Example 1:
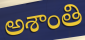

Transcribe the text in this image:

అశాంతి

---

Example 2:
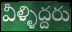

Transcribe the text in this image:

వీళ్ళిద్దరు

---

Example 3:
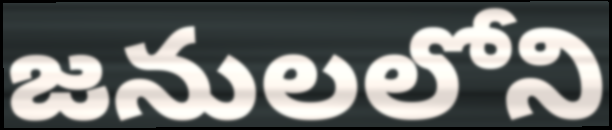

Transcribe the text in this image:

జనులలోని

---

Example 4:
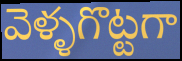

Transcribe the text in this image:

వెళ్ళగొట్టగా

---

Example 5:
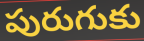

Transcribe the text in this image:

పురుగుకు